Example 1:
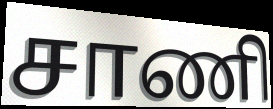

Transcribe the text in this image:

சாணி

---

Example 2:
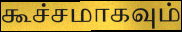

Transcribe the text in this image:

கூச்சமாகவும்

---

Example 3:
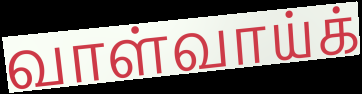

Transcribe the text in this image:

வாள்வாய்க்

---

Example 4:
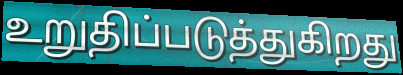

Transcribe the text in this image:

உறுதிப்படுத்துகிறது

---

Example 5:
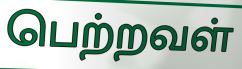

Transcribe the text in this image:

பெற்றவள்